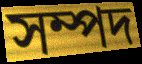
সম্পদ